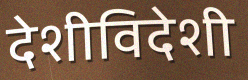
देशीविदेशी